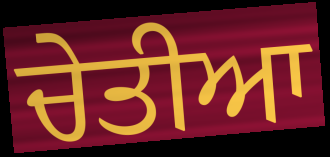
ਚੇਤੀਆ